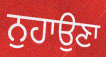
ਨੁਹਾਉਣਾ